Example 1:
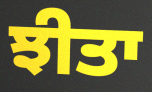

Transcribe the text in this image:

ਝੀਤਾ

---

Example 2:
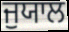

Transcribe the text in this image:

ਜੁਯਾਲ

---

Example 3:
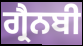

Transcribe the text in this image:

ਗ੍ਰੈਨਬੀ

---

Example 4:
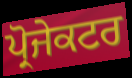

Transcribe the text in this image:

ਪ੍ਰੋਜੇਕਟਰ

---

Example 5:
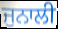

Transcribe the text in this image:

ਜੁਨਾਲੀ